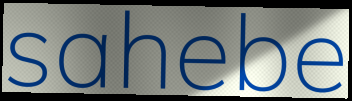
sahebe